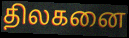
திலகனை